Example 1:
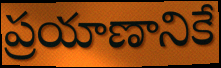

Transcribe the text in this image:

ప్రయాణానికే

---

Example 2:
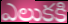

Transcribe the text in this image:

ఎలుకకి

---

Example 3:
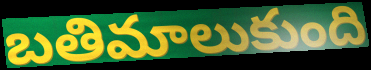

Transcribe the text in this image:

బతిమాలుకుంది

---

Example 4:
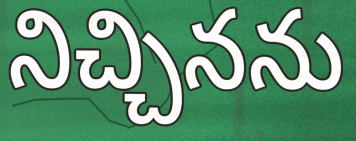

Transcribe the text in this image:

నిచ్చినను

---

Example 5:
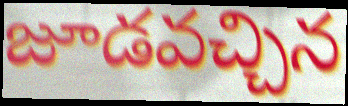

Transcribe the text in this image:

జూడవచ్చిన